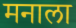
मनाला